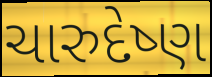
ચારુદેષ્ણ